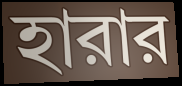
হারার